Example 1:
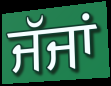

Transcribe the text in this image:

ਜੱਜਾਂ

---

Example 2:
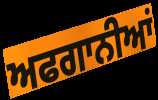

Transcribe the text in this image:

ਅਫਗਾਨੀਆਂ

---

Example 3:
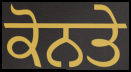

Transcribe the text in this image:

ਕੋਨਤੇ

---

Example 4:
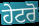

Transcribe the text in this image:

ਹੇਟਰੋ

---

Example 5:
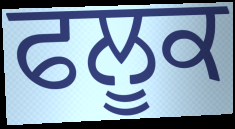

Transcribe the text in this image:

ਫਲੂਕ